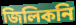
জিলিকনি